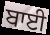
ਬਾਈ